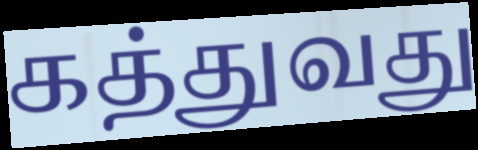
கத்துவது